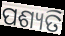
ପଶ୍ୟତି